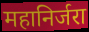
महानिर्जरा